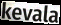
kevala